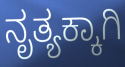
ನೃತ್ಯಕ್ಕಾಗಿ